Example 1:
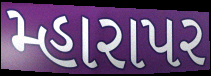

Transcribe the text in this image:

મ્હારાપર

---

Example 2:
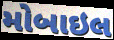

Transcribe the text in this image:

મોબાઇલ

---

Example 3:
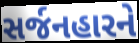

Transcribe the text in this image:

સર્જનહારને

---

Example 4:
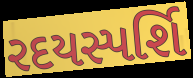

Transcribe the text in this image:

રદયસ્પર્શિ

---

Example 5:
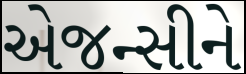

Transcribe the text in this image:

એજન્સીને